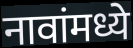
नावांमध्ये